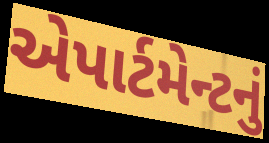
એપાર્ટમેન્ટનું